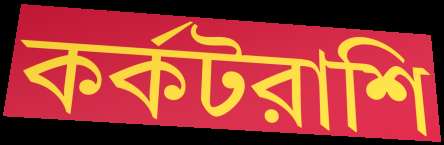
কর্কটরাশি